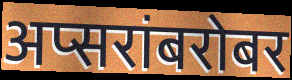
अप्सरांबरोबर